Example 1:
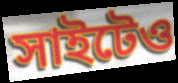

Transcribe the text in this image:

সাইটেও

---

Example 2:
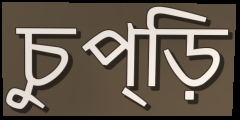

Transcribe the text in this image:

চুপ্‌ড়ি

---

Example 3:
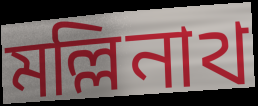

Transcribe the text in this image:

মল্লিনাথ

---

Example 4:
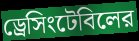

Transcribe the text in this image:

ড্রেসিংটেবিলের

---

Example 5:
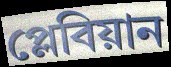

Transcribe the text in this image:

প্লেবিয়ান